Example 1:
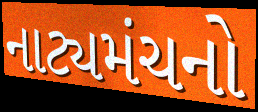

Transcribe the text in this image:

નાટ્યમંચનો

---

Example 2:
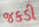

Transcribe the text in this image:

જકડી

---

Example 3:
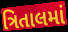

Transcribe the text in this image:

ત્રિતાલમાં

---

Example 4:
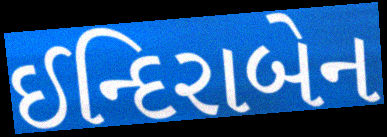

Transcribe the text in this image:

ઈન્દિરાબેન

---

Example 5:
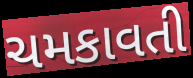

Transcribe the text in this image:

ચમકાવતી